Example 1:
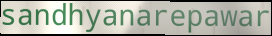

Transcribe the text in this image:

sandhyanarepawar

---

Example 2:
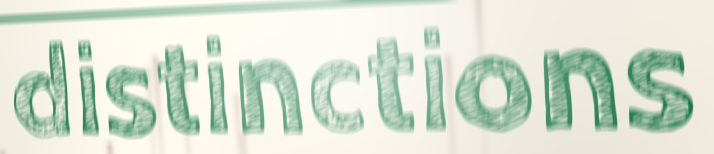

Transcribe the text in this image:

distinctions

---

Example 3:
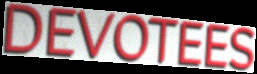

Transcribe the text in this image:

DEVOTEES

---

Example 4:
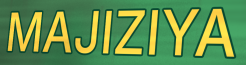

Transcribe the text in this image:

MAJIZIYA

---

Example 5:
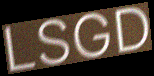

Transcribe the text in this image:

LSGD